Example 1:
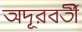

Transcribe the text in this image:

অদূরবর্তী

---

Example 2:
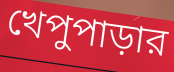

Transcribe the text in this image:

খেপুপাড়ার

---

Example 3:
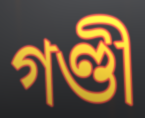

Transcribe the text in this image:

গণ্ডী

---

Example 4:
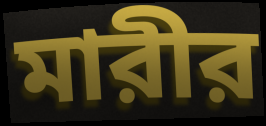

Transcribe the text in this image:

মারীর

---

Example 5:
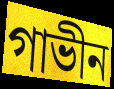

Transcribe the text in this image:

গাভীন